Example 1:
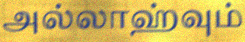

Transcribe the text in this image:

அல்லாஹ்வும்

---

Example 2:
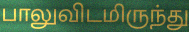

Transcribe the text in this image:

பாலுவிடமிருந்து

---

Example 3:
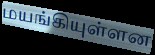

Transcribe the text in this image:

மயங்கியுள்ளன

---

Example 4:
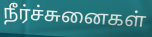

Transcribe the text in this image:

நீர்ச்சுனைகள்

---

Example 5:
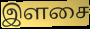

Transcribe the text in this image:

இளசை